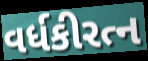
વર્ધકીરત્ન